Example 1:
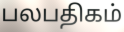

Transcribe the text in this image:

பலபதிகம்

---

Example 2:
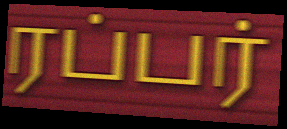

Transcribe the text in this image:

ரப்பர்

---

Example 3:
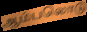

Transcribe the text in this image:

ஆம்பலொடு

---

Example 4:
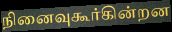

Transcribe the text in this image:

நினைவுகூர்கின்றன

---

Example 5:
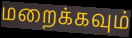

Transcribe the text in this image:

மறைக்கவும்